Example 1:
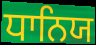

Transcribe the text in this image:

ਧਾਨਿਯ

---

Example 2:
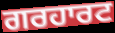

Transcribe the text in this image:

ਗਰਹਾਰਟ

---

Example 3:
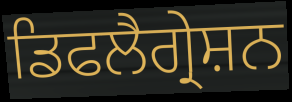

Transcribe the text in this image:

ਡਿਫਲੈਗ੍ਰੇਸ਼ਨ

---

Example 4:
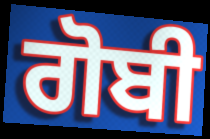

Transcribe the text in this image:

ਗੋਬੀ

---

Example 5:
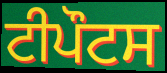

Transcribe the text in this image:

ਟੀਪੌਟਸ